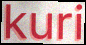
kuri